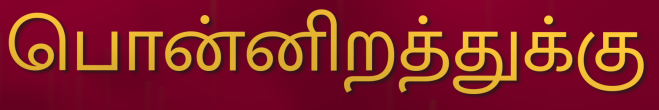
பொன்னிறத்துக்கு